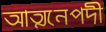
আত্মনেপদী